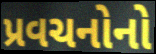
પ્રવચનોનો